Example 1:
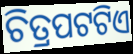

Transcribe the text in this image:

ଚିତ୍ରପଟଟିଏ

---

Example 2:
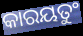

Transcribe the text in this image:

କାରୟତୁଂ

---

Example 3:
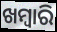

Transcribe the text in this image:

ଖମ୍ୱାରି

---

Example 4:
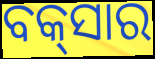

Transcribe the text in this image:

ବକ୍‌ସାର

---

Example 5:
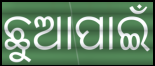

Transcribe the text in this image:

ଛୁଆପାଇଁ